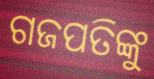
ଗଜପତିଙ୍କୁ